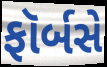
ફૉર્બસે